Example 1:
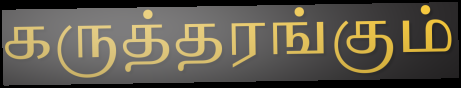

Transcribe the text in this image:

கருத்தரங்கும்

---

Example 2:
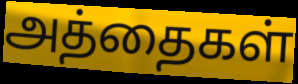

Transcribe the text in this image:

அத்தைகள்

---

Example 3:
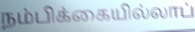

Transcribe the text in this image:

நம்பிக்கையில்லாப்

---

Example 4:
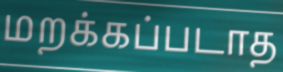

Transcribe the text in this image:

மறக்கப்படாத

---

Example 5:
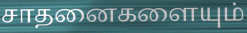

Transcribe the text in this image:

சாதனைகளையும்